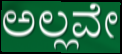
ಅಲ್ಲವೇ